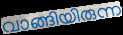
വാങ്ങിയിരുന്ന